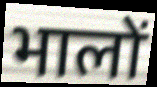
भालों